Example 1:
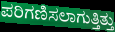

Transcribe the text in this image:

ಪರಿಗಣಿಸಲಾಗುತ್ತಿತ್ತು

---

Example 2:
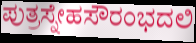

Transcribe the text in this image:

ಪುತ್ರಸ್ನೇಹಸೌರಂಭದಲಿ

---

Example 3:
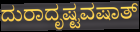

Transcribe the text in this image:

ದುರಾದೃಷ್ಟವಷಾತ್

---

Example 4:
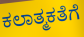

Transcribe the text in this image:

ಕಲಾತ್ಮಕತೆಗೆ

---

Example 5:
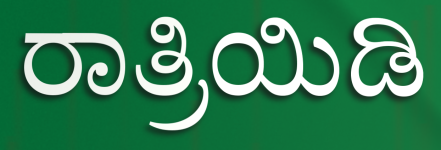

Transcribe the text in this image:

ರಾತ್ರಿಯಿಡಿ